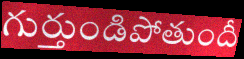
గుర్తుండిపోతుందీ